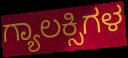
ಗ್ಯಾಲಕ್ಸಿಗಳ